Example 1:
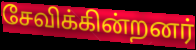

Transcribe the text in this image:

சேவிக்கின்றனர்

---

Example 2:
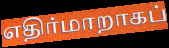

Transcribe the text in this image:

எதிர்மாறாகப்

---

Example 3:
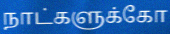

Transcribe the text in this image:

நாட்களுக்கோ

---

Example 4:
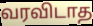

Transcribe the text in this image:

வரவிடாத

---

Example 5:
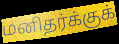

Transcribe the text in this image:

மனிதர்க்குக்